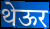
थेऊर